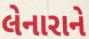
લેનારાને